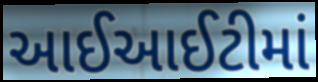
આઈઆઈટીમાં